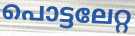
പൊട്ടലേറ്റ